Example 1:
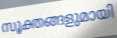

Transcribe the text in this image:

സൂക്തങ്ങളുമായി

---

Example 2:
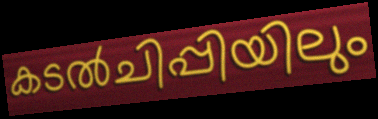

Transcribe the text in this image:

കടൽചിപ്പിയിലും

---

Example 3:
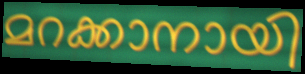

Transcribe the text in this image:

മറക്കാനായി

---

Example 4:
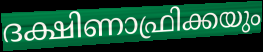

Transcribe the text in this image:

ദക്ഷിണാഫ്രിക്കയും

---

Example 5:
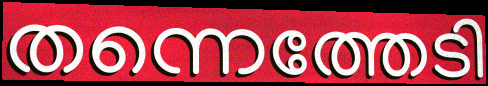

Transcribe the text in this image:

തന്നെത്തേടി